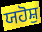
ਯਹੋਸ਼ੁ